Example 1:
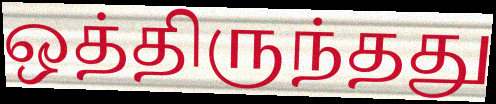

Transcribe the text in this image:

ஒத்திருந்தது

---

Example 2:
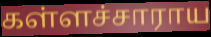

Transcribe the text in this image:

கள்ளச்சாராய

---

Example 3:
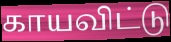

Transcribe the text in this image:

காயவிட்டு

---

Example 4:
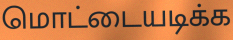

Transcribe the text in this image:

மொட்டையடிக்க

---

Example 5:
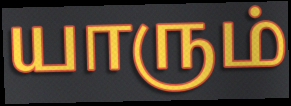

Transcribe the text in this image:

யாரும்